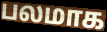
பலமாக